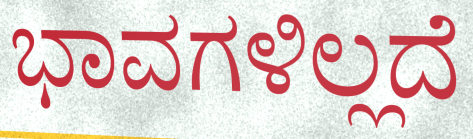
ಭಾವಗಳಿಲ್ಲದೆ